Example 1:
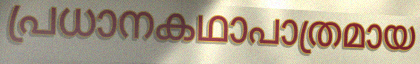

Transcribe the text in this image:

പ്രധാനകഥാപാത്രമായ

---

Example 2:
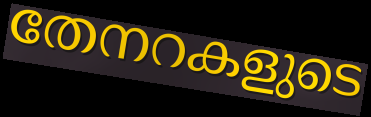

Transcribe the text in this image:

തേനറകളുടെ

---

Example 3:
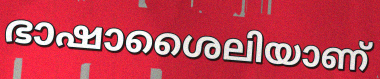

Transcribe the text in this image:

ഭാഷാശൈലിയാണ്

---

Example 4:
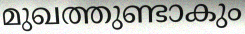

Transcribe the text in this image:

മുഖത്തുണ്ടാകും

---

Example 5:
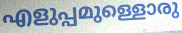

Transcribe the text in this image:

എളുപ്പമുള്ളൊരു